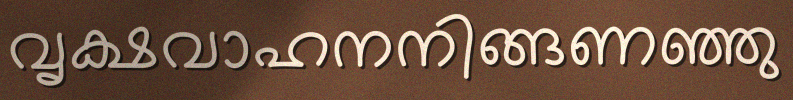
വൃക്ഷവാഹനനിങ്ങണഞ്ഞു